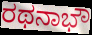
ರಥನಾಭೌ